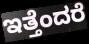
ಇತ್ತೆಂದರೆ